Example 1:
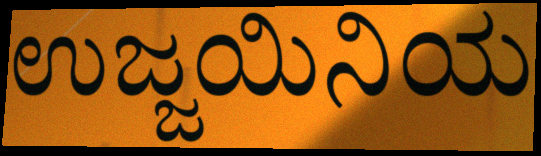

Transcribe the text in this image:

ಉಜ್ಜಯಿನಿಯ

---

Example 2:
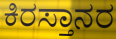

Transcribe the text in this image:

ಕಿರಸ್ತಾನರ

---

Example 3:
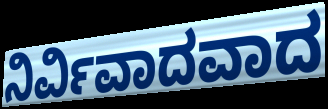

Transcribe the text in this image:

ನಿರ್ವಿವಾದವಾದ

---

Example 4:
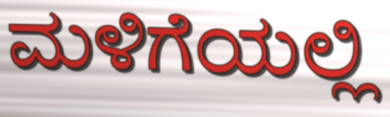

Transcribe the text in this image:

ಮಳಿಗೆಯಲ್ಲಿ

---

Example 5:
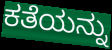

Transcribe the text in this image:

ಕತೆಯನ್ನು